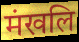
मंखलि